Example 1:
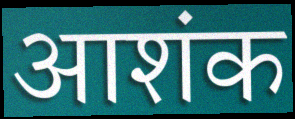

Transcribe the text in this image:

आशंक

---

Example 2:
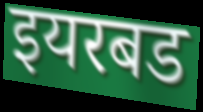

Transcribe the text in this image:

इयरबड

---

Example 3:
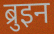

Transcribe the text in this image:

ब्रुइन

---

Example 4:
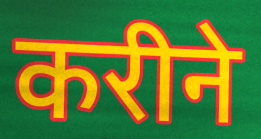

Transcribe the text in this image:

करीने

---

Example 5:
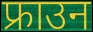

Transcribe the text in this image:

फ्राउन